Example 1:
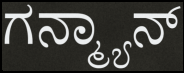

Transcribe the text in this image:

ಗನ್ಮ್ಯಾನ್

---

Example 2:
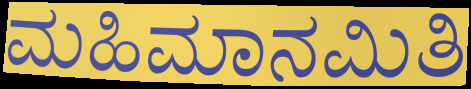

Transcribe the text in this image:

ಮಹಿಮಾನಮಿತಿ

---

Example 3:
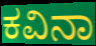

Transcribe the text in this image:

ಕವಿನಾ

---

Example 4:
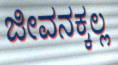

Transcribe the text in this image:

ಜೀವನಕ್ಕಲ್ಲ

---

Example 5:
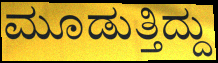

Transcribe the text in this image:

ಮೂಡುತ್ತಿದ್ದು